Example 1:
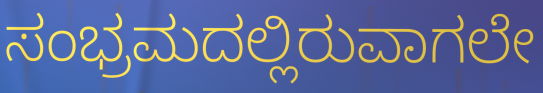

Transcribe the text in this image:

ಸಂಭ್ರಮದಲ್ಲಿರುವಾಗಲೇ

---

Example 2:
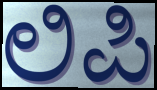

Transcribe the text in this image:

ಲಿಪಿ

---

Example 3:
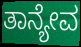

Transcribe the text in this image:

ತಾನ್ಯೇವ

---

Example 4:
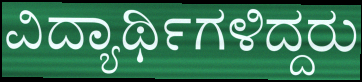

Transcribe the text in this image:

ವಿದ್ಯಾರ್ಥಿಗಳಿದ್ದರು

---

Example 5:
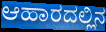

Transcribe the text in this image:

ಆಹಾರದಲ್ಲಿನ